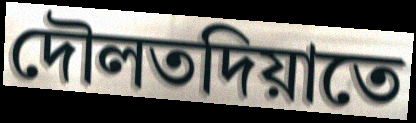
দৌলতদিয়াতে